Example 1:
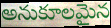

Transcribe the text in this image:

అనుకూలమైన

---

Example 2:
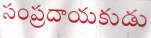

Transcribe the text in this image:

సంప్రదాయకుడు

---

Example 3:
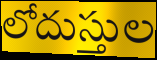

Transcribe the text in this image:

లోదుస్తుల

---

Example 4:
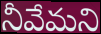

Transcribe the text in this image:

నీవేమని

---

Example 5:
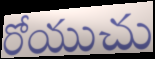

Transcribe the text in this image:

రోయుచు